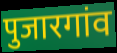
पुजारगांव